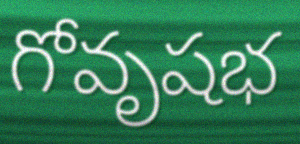
గోవృషభ